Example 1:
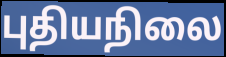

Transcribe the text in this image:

புதியநிலை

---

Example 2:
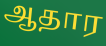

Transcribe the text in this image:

ஆதார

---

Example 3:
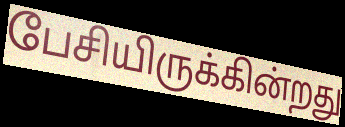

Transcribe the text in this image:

பேசியிருக்கின்றது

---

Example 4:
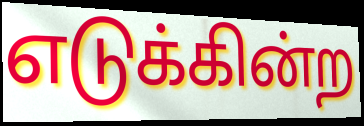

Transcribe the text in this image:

எடுக்கின்ற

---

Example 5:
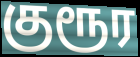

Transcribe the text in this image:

குரூர